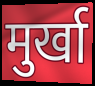
मुर्खा